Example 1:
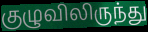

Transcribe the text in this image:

குழுவிலிருந்து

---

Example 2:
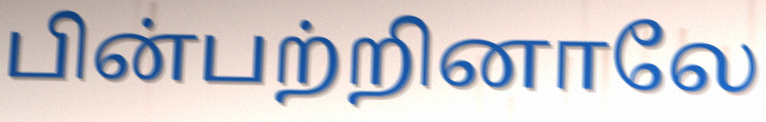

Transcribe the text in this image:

பின்பற்றினாலே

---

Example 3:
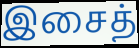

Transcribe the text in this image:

இசைத்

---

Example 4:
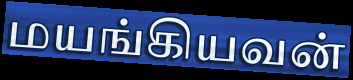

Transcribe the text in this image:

மயங்கியவன்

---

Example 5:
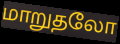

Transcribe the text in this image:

மாறுதலோ